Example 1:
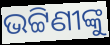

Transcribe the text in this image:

ଭଟ୍ଟିଣୀଙ୍କୁ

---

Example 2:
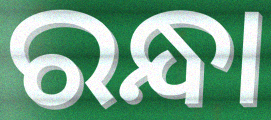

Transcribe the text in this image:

ରନ୍ଧା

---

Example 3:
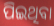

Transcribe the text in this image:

ପିଇଥିବା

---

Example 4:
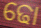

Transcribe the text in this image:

ଢୋ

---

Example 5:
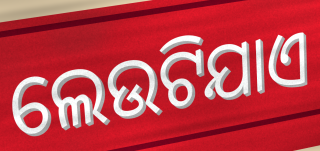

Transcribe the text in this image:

ଲେଉଟିଯାଏ